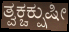
ತ್ವಕ್ಚಕ್ಷುಷೀ